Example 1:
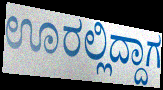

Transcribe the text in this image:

ಊರಲ್ಲಿದ್ದಾಗ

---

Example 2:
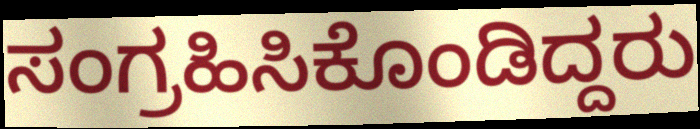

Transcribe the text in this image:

ಸಂಗ್ರಹಿಸಿಕೊಂಡಿದ್ದರು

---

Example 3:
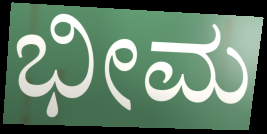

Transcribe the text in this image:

ಭೀಮ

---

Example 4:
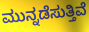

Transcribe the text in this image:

ಮುನ್ನಡೆಸುತ್ತಿವೆ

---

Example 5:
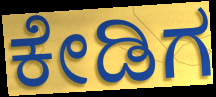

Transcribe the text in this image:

ಕೇಡಿಗ